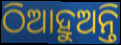
ଠିଆହୁଅନ୍ତି